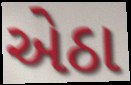
એઠા